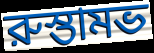
রুস্তামভ